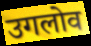
उगलोव